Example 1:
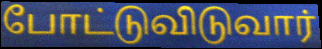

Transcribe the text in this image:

போட்டுவிடுவார்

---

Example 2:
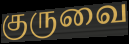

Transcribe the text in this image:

குருவை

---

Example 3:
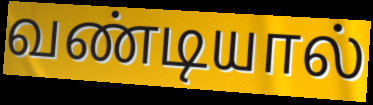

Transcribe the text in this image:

வண்டியால்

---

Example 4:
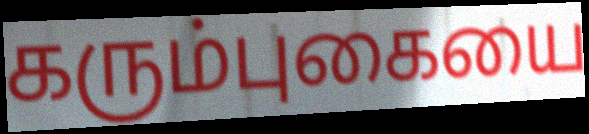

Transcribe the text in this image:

கரும்புகையை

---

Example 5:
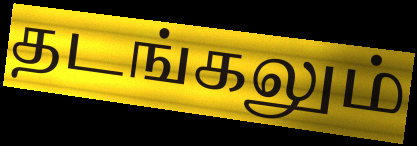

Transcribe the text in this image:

தடங்கலும்